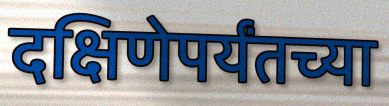
दक्षिणेपर्यंतच्या